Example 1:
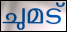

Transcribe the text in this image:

ചുമട്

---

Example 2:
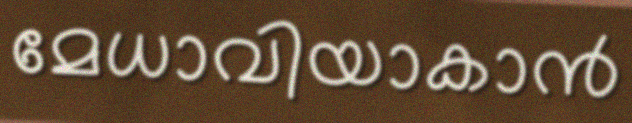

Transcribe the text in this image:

മേധാവിയാകാൻ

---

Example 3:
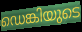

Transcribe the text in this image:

ഡെങ്കിയുടെ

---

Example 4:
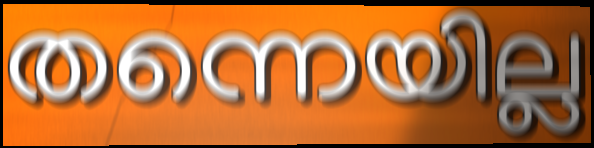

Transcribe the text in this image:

തന്നെയില്ല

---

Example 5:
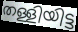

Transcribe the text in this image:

തള്ളിയിട്ട